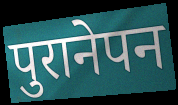
पुरानेपन